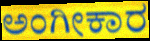
ಅಂಗೀಕಾರ